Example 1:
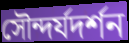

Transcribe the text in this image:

সৌন্দর্যদর্শন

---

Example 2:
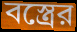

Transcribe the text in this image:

বস্ত্রের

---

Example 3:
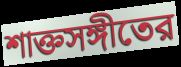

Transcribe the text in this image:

শাক্তসঙ্গীতের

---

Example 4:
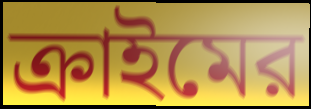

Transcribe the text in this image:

ক্রাইমের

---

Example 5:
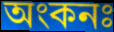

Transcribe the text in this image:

অংকনঃ